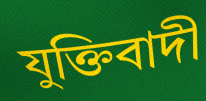
যুক্তিবাদী